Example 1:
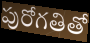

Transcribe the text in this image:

పురోగతితో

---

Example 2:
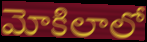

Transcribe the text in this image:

మోకిలాలో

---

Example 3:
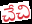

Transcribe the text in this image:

చేచి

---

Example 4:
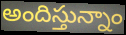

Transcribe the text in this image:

అందిస్తున్నాం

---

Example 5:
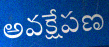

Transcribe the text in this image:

అవక్షేపణ